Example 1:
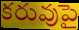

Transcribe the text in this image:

కరువుపై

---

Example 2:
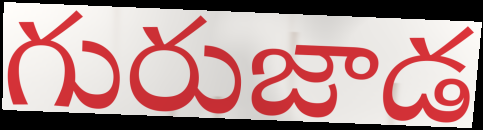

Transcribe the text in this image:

గురుజాడ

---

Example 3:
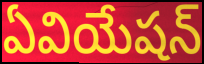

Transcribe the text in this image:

ఏవియేషన్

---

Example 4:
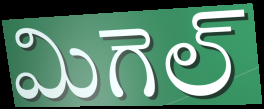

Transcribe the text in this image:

మిగెల్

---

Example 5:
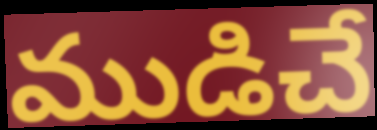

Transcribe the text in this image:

ముడిచే